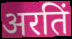
अरतिं